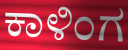
ಕಾಳಿಂಗ